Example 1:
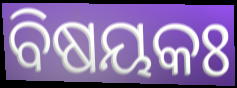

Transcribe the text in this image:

ବିଷୟକଃ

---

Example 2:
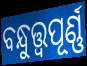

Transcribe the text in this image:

ବନ୍ଧୁତ୍ତ୍ୱପୂର୍ଣ୍ଣ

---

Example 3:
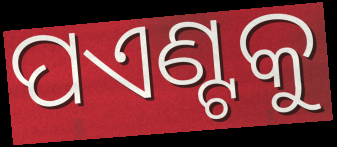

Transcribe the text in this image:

ପଏଣ୍ଟକୁ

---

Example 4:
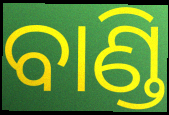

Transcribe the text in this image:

ବାଣ୍ଡି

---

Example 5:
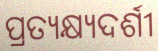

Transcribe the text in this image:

ପ୍ରତ୍ୟକ୍ଷ୍ୟଦର୍ଶୀ